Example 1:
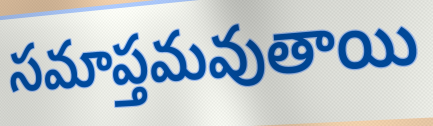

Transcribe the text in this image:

సమాప్తమవుతాయి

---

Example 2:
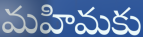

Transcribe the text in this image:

మహిమకు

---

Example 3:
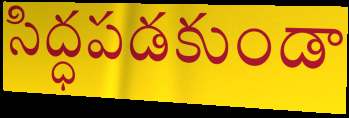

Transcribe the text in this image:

సిద్ధపడకుండా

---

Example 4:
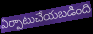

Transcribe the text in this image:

ఏర్పాటుచేయబడింది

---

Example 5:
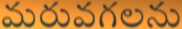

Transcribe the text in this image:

మరువగలను